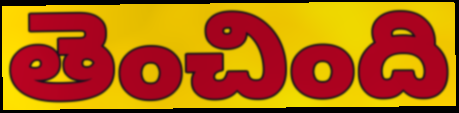
తెంచింది